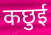
कछुई